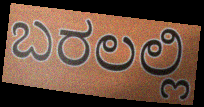
ಬರಲಲ್ಲಿ